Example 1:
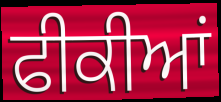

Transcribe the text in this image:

ਫੀਕੀਆਂ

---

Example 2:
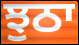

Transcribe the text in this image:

ਝੁਠਾ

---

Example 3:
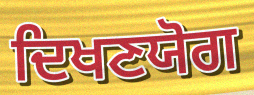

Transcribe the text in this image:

ਦਿਖਣਯੋਗ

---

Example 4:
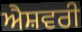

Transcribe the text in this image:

ਐਸ਼ਵਰੀ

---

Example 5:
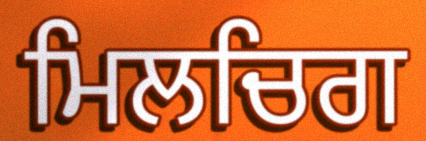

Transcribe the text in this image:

ਮਿਲਚਿਗ